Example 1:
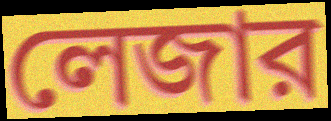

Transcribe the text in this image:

লেজার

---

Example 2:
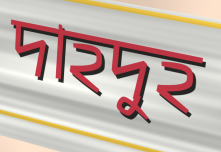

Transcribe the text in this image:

দাহদুহ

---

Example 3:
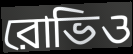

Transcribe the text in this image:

রোভিও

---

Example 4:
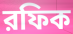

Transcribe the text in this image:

রফিক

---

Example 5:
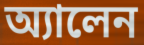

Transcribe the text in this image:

অ্যালেন